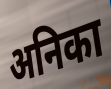
अनिका